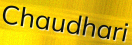
Chaudhari